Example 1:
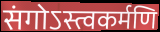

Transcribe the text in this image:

संगोऽस्त्वकर्मणि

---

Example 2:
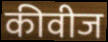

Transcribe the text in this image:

कीवीज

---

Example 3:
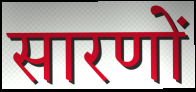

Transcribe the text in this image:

सारणों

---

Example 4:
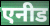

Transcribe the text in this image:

एनीड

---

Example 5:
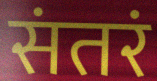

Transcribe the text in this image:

संतरं